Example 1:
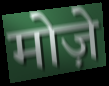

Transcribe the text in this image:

मोज़े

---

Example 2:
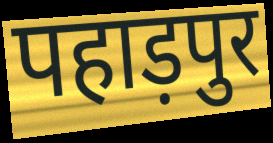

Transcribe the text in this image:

पहाड़पुर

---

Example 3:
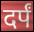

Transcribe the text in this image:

दर्पं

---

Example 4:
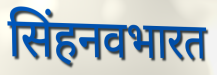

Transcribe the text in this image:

सिंहनवभारत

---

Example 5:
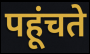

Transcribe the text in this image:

पहूंचते